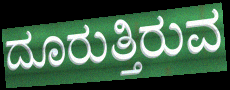
ದೂರುತ್ತಿರುವ